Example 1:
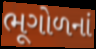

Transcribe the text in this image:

ભૂગોળનાં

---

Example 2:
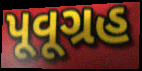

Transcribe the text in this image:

પૂવૂગ્રહ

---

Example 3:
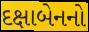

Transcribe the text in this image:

દક્ષાબેનનો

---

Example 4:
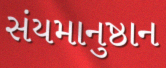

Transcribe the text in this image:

સંયમાનુષ્ઠાન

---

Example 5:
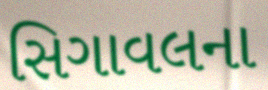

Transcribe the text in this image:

સિગાવલના